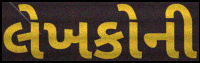
લેખકોની